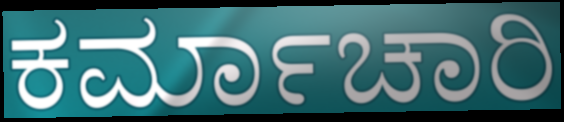
ಕರ್ಮಾಚಾರಿ